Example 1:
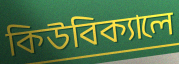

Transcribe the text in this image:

কিউবিক্যালে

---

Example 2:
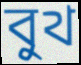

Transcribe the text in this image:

বুথ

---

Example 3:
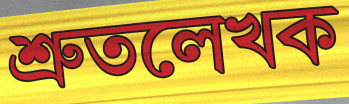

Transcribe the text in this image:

শ্রুতলেখক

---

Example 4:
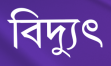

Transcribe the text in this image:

বিদ্যুৎ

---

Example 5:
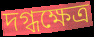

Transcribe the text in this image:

দগ্ধক্ষেত্র